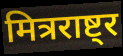
मित्रराष्ट्र